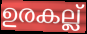
ഉരകല്ല്